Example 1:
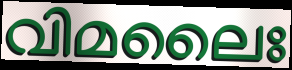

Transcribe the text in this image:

വിമലൈഃ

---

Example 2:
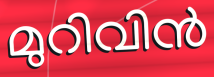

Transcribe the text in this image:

മുറിവിൻ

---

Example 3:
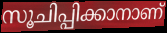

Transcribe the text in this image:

സൂചിപ്പിക്കാനാണ്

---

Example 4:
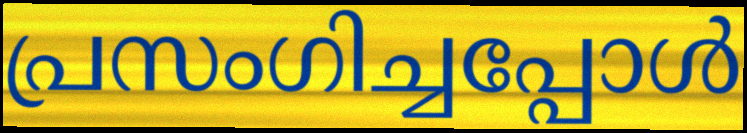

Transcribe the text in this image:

പ്രസംഗിച്ചപ്പോൾ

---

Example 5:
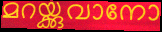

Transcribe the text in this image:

മറയ്ക്കുവാനോ